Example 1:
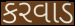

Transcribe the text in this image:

કરવાડ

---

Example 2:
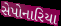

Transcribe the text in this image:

સેપોનારિયા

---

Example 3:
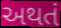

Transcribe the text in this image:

અથતં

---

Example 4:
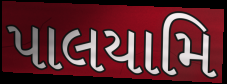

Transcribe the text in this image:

પાલયામિ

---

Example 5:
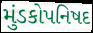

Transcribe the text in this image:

મુંડકોપનિષદ